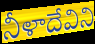
నీళాదేవిని